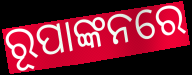
ରୂପାଙ୍କନରେ